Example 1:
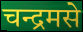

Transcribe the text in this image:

चन्द्रमसे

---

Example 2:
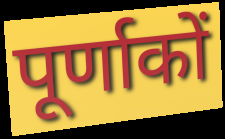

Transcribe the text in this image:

पूर्णाकों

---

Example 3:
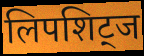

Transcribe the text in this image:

लिपशिट्ज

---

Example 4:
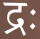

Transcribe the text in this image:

द्रः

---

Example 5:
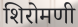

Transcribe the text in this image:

शिरोमणी